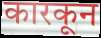
कारकून